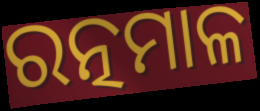
ରତ୍ନମାଳ